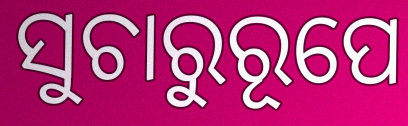
ସୁଚାରୁରୂପେ